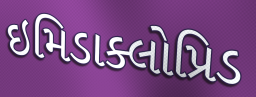
ઇમિડાક્લોપ્રિડ